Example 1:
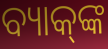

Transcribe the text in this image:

ବ୍ୟାକ୍‍ଙ୍କ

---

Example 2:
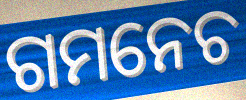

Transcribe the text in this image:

ଗମନେଚ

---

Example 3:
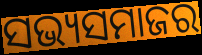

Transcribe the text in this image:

ସଭ୍ୟସମାଜର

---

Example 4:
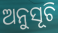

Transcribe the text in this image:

ଅନୁସୂଚି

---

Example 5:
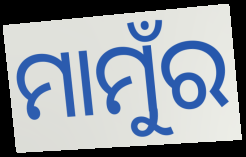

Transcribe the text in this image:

ମାମୁଁର